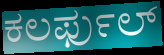
ಕಲರ್ಫುಲ್